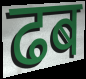
ढब